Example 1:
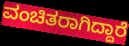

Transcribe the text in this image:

ವಂಚಿತರಾಗಿದ್ದಾರೆ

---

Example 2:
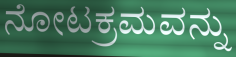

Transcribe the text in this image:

ನೋಟಕ್ರಮವನ್ನು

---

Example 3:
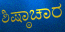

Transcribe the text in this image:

ಶಿಷ್ಠಾಚಾರ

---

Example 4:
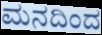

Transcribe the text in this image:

ಮನದಿಂದ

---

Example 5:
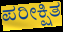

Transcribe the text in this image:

ಪರೀಕ್ಷಿತ